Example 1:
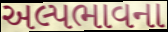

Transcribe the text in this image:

અલ્પભાવના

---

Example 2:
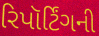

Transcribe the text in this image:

રિપૉર્ટિંગની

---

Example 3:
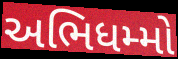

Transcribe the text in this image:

અભિધમ્મો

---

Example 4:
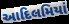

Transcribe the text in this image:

આદિલમિયાં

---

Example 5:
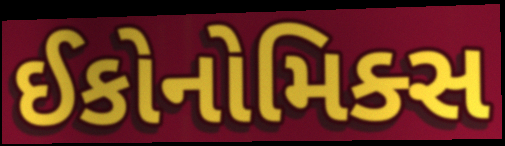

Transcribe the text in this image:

ઈકોનોમિક્સ